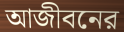
আজীবনের